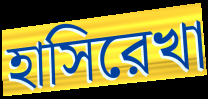
হাসিরেখা